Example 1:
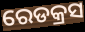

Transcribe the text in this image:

ରେଡକ୍ରସ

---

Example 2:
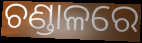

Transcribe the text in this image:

ଚଣ୍ଡାଳରେ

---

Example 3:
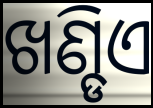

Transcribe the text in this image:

ଖଣ୍ଡିଏ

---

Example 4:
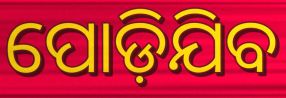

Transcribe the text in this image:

ପୋଡ଼ିଯିବ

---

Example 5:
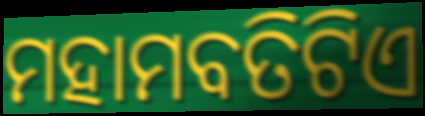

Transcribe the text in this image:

ମହାମବତିଟିଏ